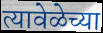
त्यावेळेच्या